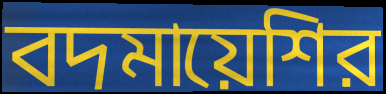
বদমায়েশির